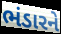
ભંડારને